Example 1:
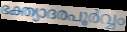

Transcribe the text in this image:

ഭക്ത്യാദരപൂർവ്വം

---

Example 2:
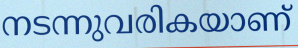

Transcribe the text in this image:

നടന്നുവരികയാണ്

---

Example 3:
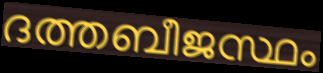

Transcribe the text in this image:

ദത്തബീജസ്ഥം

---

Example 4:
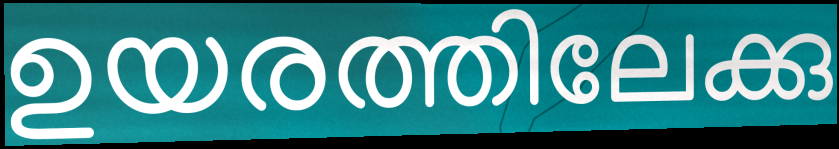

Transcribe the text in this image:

ഉയരത്തിലേക്കു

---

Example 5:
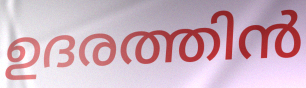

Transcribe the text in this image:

ഉദരത്തിൻ